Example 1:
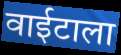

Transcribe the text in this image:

वाईटाला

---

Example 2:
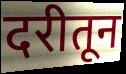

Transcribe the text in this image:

दरीतून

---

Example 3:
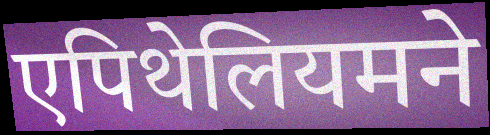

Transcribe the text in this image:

एपिथेलियमने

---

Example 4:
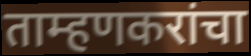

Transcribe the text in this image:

ताम्हणकरांचा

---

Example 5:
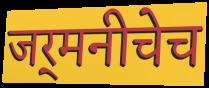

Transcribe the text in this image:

जर्मनीचेच